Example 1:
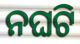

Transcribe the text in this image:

ନଘଟି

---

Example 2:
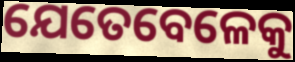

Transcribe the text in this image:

ଯେତେବେଳେକୁ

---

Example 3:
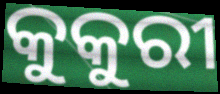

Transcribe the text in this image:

କୁକୁରୀ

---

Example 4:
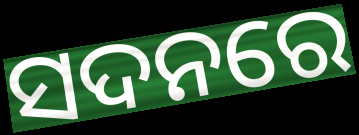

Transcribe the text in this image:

ସଦନରେ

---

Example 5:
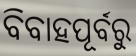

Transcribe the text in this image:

ବିବାହପୂର୍ବରୁ